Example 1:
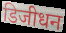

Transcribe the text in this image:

डिजीधन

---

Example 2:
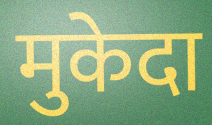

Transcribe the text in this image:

मुकेदा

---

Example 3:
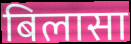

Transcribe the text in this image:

बिलासा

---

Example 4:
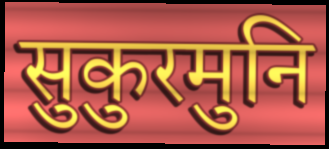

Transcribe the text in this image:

सुकुरमुनि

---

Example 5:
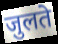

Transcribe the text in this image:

जुलते